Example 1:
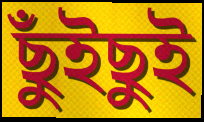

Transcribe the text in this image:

ছুঁইছুই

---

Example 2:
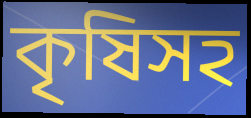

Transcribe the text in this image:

কৃষিসহ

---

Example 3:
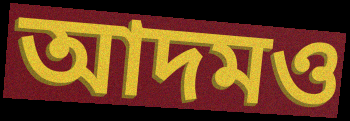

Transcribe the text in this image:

আদমও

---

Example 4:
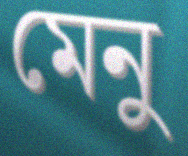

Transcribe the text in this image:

মেনু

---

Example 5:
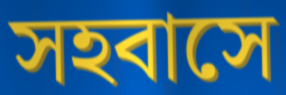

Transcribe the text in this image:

সহবাসে